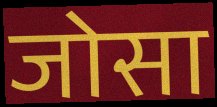
जोसा